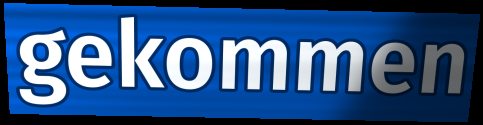
gekommen